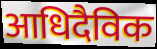
आधिदैविक